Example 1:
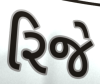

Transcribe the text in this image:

રિજે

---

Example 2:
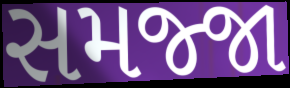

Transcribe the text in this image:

સમજ્જા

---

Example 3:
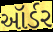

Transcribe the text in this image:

ઑર્ડર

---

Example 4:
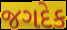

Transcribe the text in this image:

જગદેક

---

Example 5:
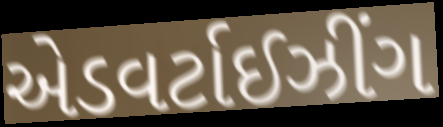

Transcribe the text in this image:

એડવર્ટાઈઝીંગ